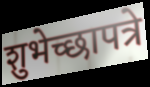
शुभेच्छापत्रे